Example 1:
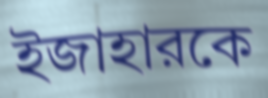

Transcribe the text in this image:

ইজাহারকে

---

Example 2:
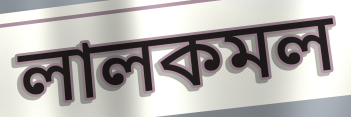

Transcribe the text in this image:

লালকমল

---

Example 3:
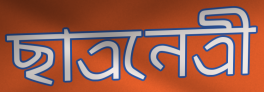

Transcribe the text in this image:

ছাত্রনেত্রী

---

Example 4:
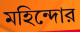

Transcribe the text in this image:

মহিন্দোর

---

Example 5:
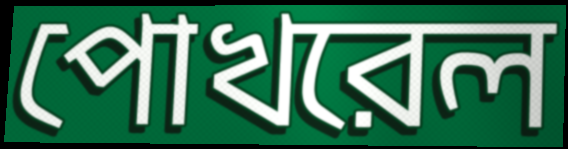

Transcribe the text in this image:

পোখরেল